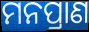
ମନପ୍ରାଣ